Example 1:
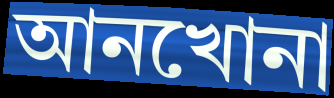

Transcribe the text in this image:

আনখোনা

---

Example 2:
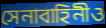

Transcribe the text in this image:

সেনাবাহিনীও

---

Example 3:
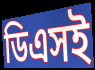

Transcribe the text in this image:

ডিএসই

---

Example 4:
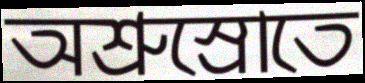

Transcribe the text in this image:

অশ্রুস্রোতে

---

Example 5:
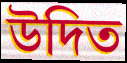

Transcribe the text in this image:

উদিত